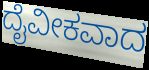
ದೈವೀಕವಾದ